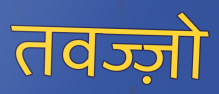
तवज्ज़ो